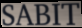
SABIT